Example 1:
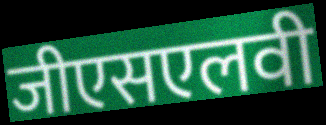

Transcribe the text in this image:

जीएसएलवी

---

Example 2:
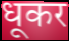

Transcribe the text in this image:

धूकर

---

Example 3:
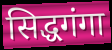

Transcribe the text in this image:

सिद्धगंगा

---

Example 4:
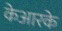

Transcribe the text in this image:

केआरके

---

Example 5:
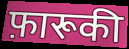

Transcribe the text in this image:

फ़ारूकी